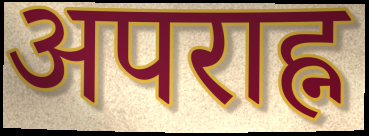
अपराह्न